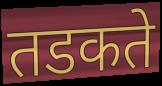
तडकते